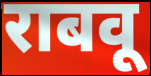
राबवू